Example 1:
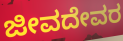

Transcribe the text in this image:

ಜೀವದೇವರ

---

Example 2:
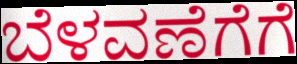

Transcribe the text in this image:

ಬೆಳವಣೆಗೆಗೆ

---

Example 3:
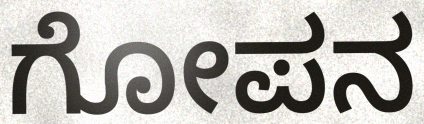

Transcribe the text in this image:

ಗೋಪನ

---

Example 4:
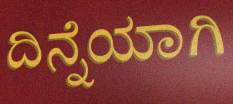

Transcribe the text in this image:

ದಿನ್ನೆಯಾಗಿ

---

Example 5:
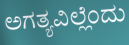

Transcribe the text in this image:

ಅಗತ್ಯವಿಲ್ಲೆಂದು